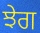
ਝੇਗ